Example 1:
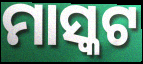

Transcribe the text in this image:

ମାସ୍କଟ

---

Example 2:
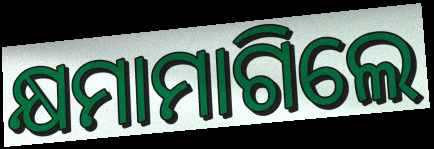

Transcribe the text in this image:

କ୍ଷମାମାଗିଲେ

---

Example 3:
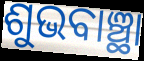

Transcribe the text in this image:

ଶୁଭବାଞ୍ଛା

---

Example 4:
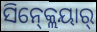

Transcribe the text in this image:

ସିନ୍କ୍ଲେୟାର୍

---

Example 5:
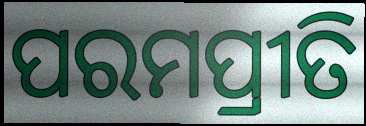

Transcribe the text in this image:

ପରମପ୍ରୀତି